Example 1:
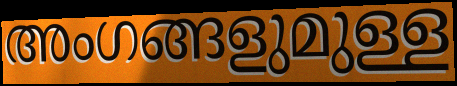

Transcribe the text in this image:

അംഗങ്ങളുമുള്ള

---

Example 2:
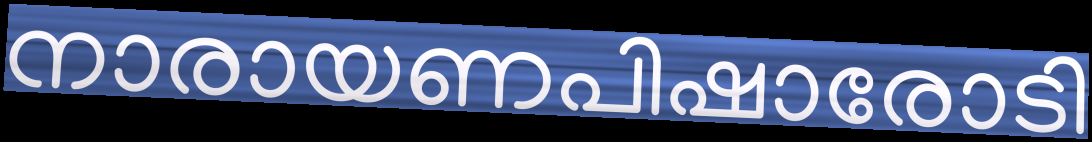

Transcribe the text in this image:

നാരായണപിഷാരോടി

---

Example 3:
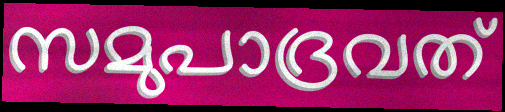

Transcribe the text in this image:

സമുപാദ്രവത്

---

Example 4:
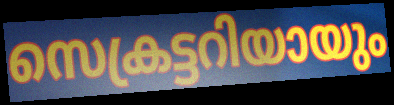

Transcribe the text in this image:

സെക്രട്ടറിയായും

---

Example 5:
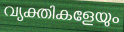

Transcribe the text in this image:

വ്യക്തികളേയും